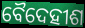
ବୈଦେହୀଶ